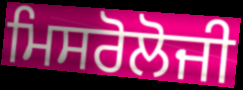
ਮਿਸਰੋਲੋਜੀ